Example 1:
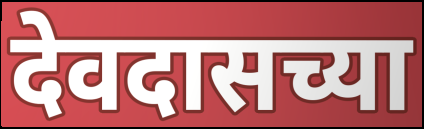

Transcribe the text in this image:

देवदासच्या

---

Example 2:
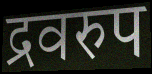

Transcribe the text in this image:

द्रवरुप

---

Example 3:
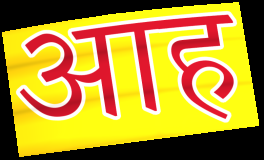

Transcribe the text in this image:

आह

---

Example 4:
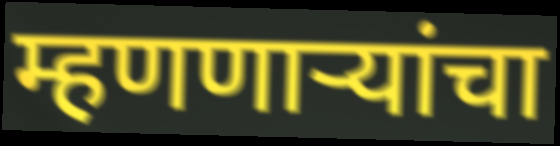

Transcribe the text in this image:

म्हणणाऱ्यांचा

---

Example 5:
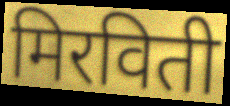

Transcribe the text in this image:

मिरविती